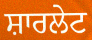
ਸ਼ਾਰਲੇਟ